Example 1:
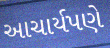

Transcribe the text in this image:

આચાર્યપણે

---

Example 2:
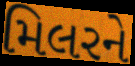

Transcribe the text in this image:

મિલરને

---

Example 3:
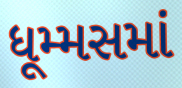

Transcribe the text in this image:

ધૂમ્મસમાં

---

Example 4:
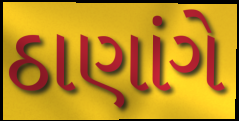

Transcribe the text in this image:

ઠાણાંગે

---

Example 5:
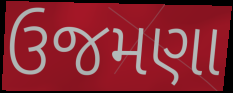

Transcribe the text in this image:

ઉજમણા